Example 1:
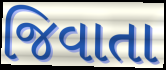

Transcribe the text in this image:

જિવાતા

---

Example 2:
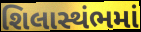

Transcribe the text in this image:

શિલાસ્થંભમાં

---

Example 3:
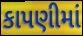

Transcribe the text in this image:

કાપણીમાં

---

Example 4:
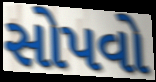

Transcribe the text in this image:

સોપવો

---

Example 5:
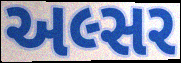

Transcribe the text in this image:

અલ્સર